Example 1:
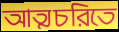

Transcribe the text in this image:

আত্মচরিতে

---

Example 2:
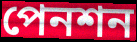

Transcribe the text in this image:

পেনশন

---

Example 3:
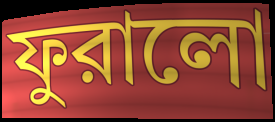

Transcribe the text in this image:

ফুরালো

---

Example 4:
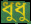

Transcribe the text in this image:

ধুধু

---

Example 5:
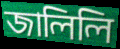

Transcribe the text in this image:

জালিলি